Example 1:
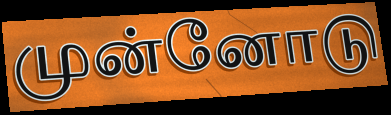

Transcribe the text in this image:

முன்னோடு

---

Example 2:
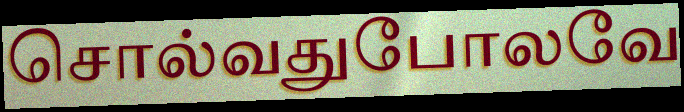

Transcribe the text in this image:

சொல்வதுபோலவே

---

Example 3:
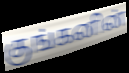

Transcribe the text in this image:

குங்கனின்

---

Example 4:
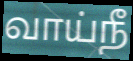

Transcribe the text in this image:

வாய்நீ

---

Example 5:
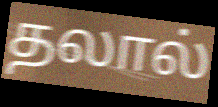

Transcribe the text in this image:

தலால்